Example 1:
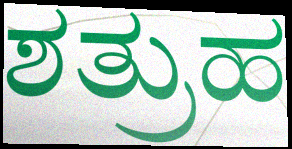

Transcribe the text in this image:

ಶತ್ರುಹ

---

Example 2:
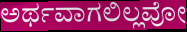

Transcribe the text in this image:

ಅರ್ಥವಾಗಲಿಲ್ಲವೋ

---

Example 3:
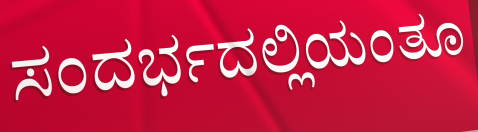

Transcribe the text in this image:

ಸಂದರ್ಭದಲ್ಲಿಯಂತೂ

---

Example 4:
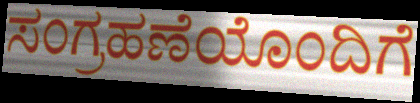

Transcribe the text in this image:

ಸಂಗ್ರಹಣೆಯೊಂದಿಗೆ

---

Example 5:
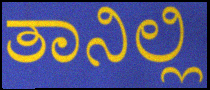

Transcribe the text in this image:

ತಾನಿಲ್ಲಿ